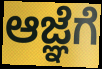
ಆಜ್ಞೆಗೆ